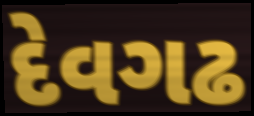
દેવગઢ